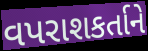
વપરાશકર્તાને